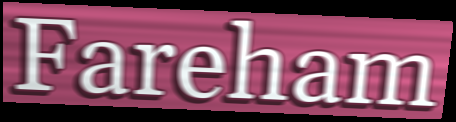
Fareham